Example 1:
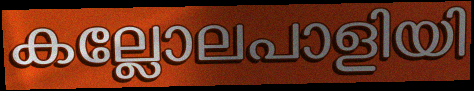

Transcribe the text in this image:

കല്ലോലപാളിയി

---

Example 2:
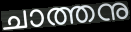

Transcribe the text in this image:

ചാത്തനു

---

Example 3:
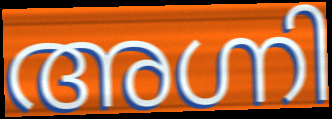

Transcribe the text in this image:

അഗ്നി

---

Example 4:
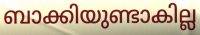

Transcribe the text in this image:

ബാക്കിയുണ്ടാകില്ല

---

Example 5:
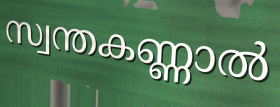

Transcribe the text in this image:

സ്വന്തകണ്ണാൽ